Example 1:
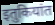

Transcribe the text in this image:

इतुकियांत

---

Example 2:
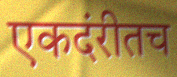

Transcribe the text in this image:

एकदंरीतच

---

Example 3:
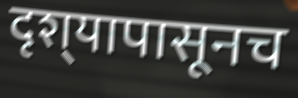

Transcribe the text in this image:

दृश्यापासूनच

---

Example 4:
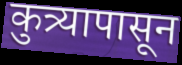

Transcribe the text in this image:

कुत्र्यापासून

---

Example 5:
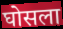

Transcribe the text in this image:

घोसला